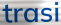
trasi